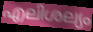
എലിശല്യം